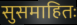
सुसमाहितः